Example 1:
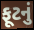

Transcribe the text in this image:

ફૂટનું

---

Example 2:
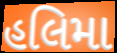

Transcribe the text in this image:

હલિમા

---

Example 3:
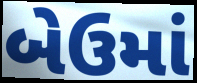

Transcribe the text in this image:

બેઉમાં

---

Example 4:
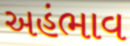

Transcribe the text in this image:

અહંભાવ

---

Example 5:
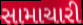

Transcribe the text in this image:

સામાચારી